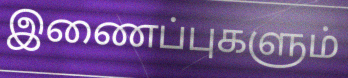
இணைப்புகளும்